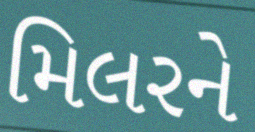
મિલરને